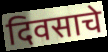
दिवसाचे